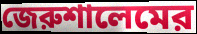
জেরুশালেমের